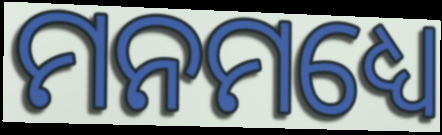
ମନମଧ୍ୟେ